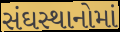
સંઘસ્થાનોમાં